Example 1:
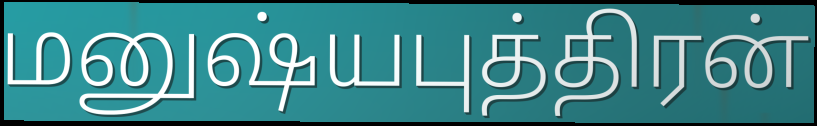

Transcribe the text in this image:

மனுஷ்யபுத்திரன்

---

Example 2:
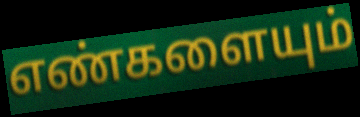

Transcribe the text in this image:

எண்களையும்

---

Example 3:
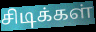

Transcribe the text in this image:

சிடிக்கள்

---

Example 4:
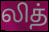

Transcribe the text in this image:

லித்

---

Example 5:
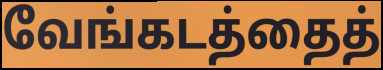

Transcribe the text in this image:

வேங்கடத்தைத்